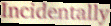
Incidentally